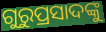
ଗୁରୁପ୍ରସାଦଙ୍କୁ